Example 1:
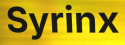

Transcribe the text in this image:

Syrinx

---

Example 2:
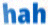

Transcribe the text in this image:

hah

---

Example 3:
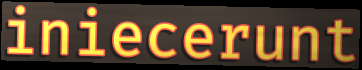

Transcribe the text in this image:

iniecerunt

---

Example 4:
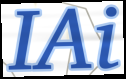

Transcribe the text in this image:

IAi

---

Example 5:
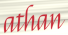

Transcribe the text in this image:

athan